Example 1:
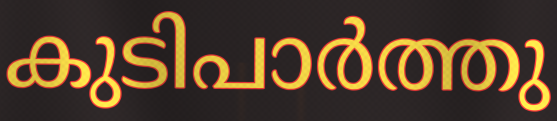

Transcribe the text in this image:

കുടിപാർത്തു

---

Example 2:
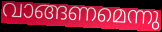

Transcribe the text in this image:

വാങ്ങണമെന്നു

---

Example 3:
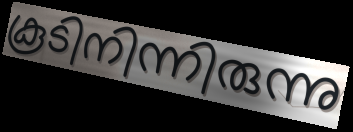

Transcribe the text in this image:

കൂടിനിന്നിരുന്നു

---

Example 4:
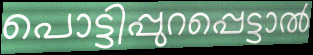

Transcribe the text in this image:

പൊട്ടിപ്പുറപ്പെട്ടാൽ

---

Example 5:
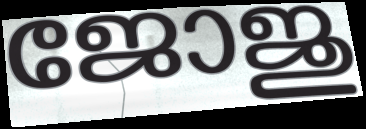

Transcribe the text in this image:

ജോജു